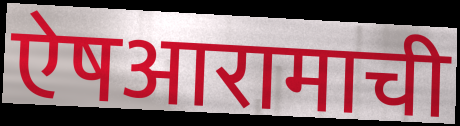
ऐषआरामाची